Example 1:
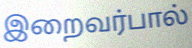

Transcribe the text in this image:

இறைவர்பால்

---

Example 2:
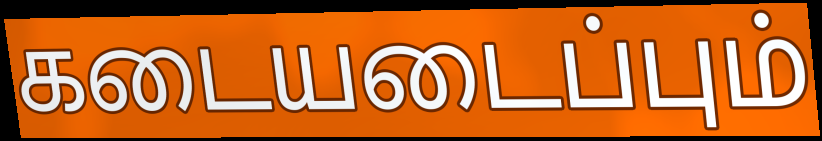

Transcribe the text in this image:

கடையடைப்பும்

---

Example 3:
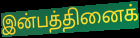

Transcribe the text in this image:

இன்பத்தினைக்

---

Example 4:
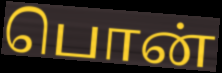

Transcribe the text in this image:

பொன்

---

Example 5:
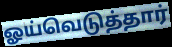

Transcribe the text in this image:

ஓய்வெடுத்தார்